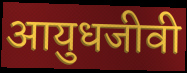
आयुधजीवी